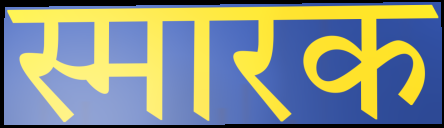
स्मारक